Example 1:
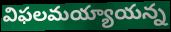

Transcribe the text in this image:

విఫలమయ్యాయన్న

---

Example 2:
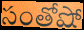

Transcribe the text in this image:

సంతోషో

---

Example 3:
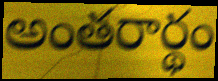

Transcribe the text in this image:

అంతరార్థం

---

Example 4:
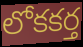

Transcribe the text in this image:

లోకకర్త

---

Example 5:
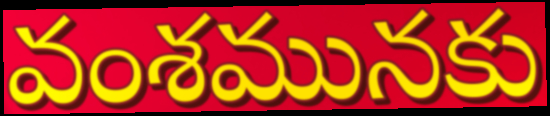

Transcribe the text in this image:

వంశమునకు